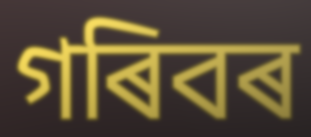
গৰিবৰ